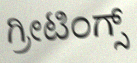
ಗ್ರೀಟಿಂಗ್ಸ್